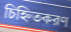
চিহ্নিতকরণ